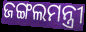
ଜଙ୍ଗଲମନ୍ତ୍ରୀ